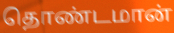
தொண்டமான்